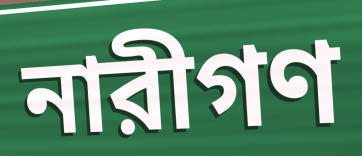
নারীগণ